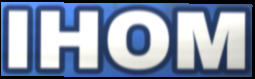
IHOM